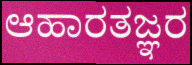
ಆಹಾರತಜ್ಞರ